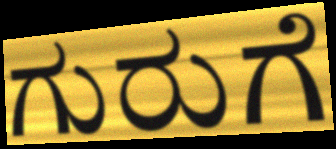
ಗುರುಗೆ